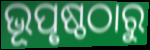
ଭୂପୃଷ୍ଠଠାରୁ